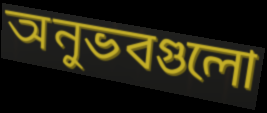
অনুভবগুলো